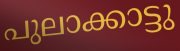
പുലാക്കാട്ടു